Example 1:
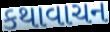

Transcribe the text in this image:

કથાવાચન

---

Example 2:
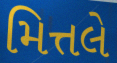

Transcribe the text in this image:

મિત્તલે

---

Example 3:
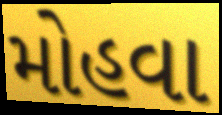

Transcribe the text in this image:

મોહવા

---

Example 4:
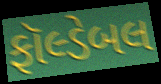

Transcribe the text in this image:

ફૉલ્ડેબલ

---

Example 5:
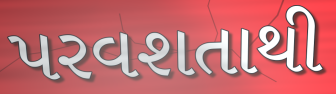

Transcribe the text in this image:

પરવશતાથી